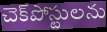
చెక్‌పోస్టులను